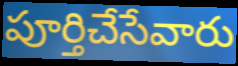
పూర్తిచేసేవారు